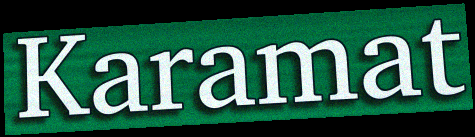
Karamat